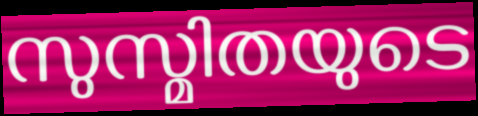
സുസ്മിതയുടെ